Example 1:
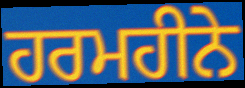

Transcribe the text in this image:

ਹਰਮਹੀਨੇ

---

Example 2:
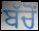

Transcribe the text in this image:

ਬੱਚੋਂ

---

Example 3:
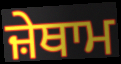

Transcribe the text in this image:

ਜ਼ੇਥਾਮ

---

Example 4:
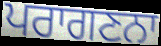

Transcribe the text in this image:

ਪਰਾਗਣਨਾ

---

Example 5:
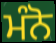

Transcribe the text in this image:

ਮੰਨੋ